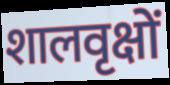
शालवृक्षों